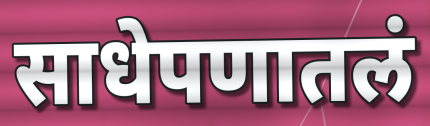
साधेपणातलं